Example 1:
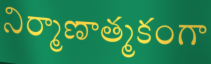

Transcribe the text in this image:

నిర్మాణాత్మకంగా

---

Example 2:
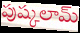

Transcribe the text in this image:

పుష్కలామ్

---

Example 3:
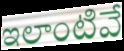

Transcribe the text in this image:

ఇలాంటివే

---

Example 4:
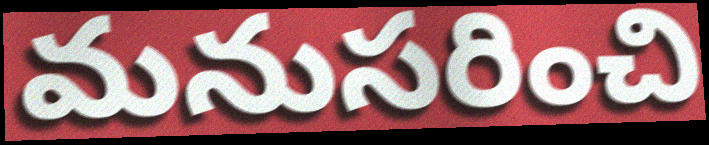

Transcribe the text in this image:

మనుసరించి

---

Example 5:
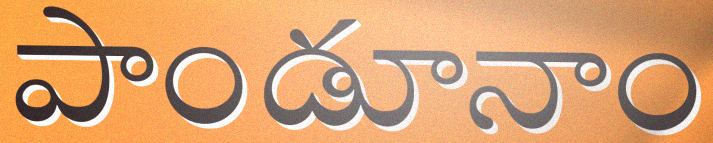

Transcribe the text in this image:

పాండూనాం